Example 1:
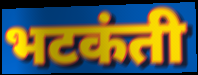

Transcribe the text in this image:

भटकंती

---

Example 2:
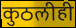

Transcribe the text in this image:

कुठलीही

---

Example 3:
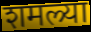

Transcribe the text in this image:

शमल्या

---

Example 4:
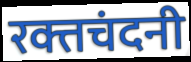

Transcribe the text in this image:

रक्तचंदनी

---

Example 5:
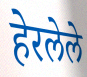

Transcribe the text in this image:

हेरलेले